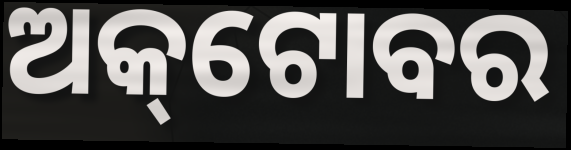
ଅକ୍‌ଟୋବର